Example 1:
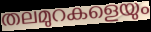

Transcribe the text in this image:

തലമുറകളെയും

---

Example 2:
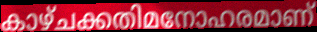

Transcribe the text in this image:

കാഴ്ചക്കതിമനോഹരമാണ്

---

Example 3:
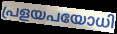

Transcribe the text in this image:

പ്രളയപയോധി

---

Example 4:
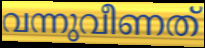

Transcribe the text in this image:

വന്നുവീണത്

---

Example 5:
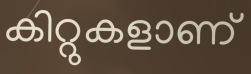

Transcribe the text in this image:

കിറ്റുകളാണ്